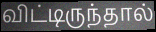
விட்டிருந்தால்